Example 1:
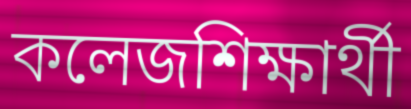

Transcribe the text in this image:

কলেজশিক্ষার্থী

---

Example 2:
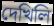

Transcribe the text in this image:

দেখিলি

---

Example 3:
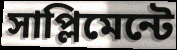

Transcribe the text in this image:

সাপ্লিমেন্টে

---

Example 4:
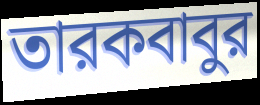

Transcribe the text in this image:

তারকবাবুর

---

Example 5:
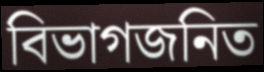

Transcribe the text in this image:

বিভাগজনিত